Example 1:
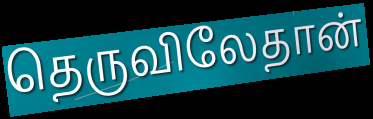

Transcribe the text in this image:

தெருவிலேதான்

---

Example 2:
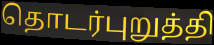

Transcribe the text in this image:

தொடர்புறுத்தி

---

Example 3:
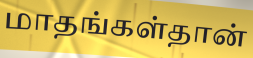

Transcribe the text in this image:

மாதங்கள்தான்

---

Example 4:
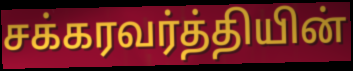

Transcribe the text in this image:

சக்கரவர்த்தியின்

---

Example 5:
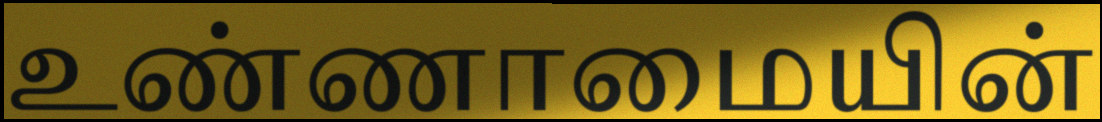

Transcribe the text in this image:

உண்ணாமையின்